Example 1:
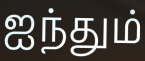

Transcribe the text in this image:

ஐந்தும்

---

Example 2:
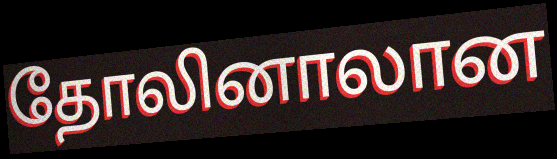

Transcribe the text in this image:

தோலினாலான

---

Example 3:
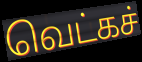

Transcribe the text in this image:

வெட்கச்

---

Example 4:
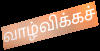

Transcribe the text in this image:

வாழ்விக்கச்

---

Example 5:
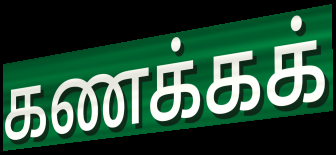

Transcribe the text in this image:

கணக்கக்